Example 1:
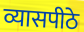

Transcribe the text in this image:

व्यासपीठे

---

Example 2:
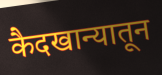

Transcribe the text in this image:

कैदखान्यातून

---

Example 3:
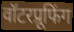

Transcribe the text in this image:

वॉटरप्रूफिंग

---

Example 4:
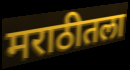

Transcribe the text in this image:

मराठीतला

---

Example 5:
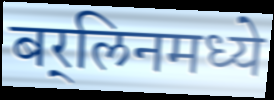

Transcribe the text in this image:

बर्लिनमध्ये